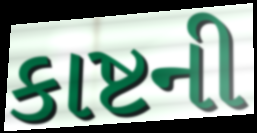
કાષ્ટની